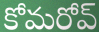
కోమరోవ్